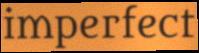
imperfect